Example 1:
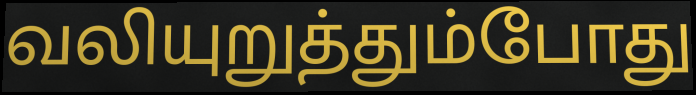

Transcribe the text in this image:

வலியுறுத்தும்போது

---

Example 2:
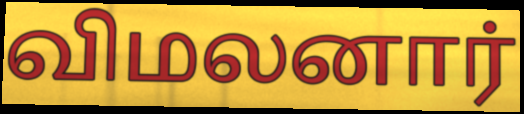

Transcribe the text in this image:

விமலனார்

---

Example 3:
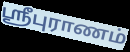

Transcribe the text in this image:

ஸ்ரீபுராணம்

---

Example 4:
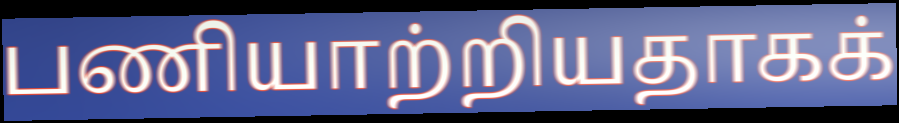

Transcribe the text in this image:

பணியாற்றியதாகக்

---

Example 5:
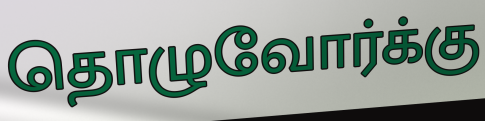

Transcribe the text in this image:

தொழுவோர்க்கு